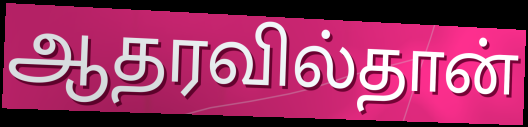
ஆதரவில்தான்